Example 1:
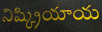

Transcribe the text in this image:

నిష్క్రియాయ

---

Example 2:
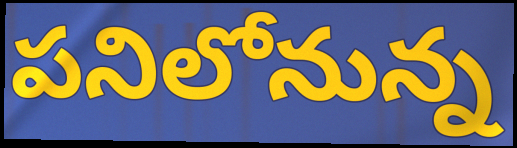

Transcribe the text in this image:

పనిలోనున్న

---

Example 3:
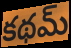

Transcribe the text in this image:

కథమ్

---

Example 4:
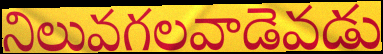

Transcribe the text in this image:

నిలువగలవాడెవడు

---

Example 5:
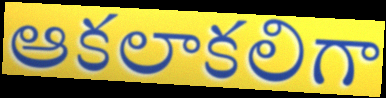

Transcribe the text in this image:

ఆకలాకలిగా